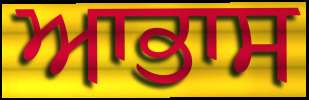
ਆਭਾਸ